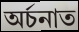
অৰ্চনাত